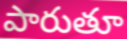
పారుతూ